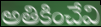
అతికించేవి